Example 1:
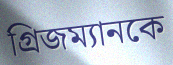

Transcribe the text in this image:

গ্রিজম্যানকে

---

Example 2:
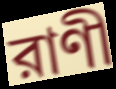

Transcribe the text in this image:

রাণী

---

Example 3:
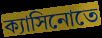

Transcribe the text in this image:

ক্যাসিনোতে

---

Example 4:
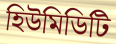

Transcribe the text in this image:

হিউমিডিটি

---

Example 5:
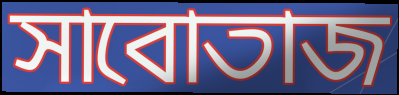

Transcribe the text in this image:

সাবোতাজ